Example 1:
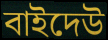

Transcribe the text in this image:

বাইদেউ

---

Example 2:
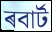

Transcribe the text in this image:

ৰবাৰ্ট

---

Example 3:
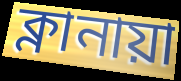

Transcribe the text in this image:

ক্নানায়া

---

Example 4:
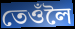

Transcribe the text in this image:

তেওঁলৈ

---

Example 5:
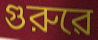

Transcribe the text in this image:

গুৰুৱে